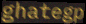
ghategp